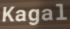
Kagal